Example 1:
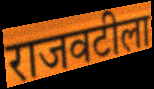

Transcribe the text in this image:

राजवटीला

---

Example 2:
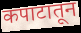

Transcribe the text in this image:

कपाटातून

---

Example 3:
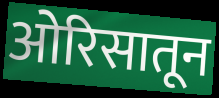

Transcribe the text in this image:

ओरिसातून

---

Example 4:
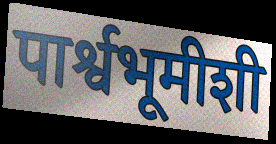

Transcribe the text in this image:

पार्श्वभूमीशी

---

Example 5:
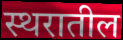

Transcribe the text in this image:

स्थरातील